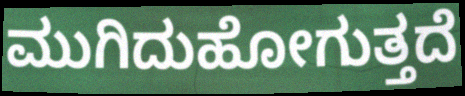
ಮುಗಿದುಹೋಗುತ್ತದೆ